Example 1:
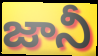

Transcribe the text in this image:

జానీ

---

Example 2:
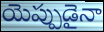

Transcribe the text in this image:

యెప్పుడైనా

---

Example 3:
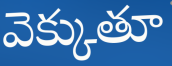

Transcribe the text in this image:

వెక్కుతూ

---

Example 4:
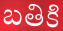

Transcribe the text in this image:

బతికి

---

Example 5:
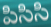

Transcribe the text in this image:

పిసిసి